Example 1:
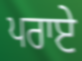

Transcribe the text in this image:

ਪਰਾਏ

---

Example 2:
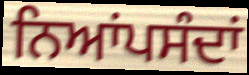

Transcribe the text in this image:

ਨਿਆਂਪਸੰਦਾਂ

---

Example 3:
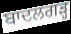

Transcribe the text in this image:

ਬਾਦਲਗੜ੍ਹ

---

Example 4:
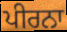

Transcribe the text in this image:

ਪੀਰਨਾ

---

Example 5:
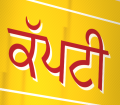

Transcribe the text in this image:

ਕੱਪਟੀ